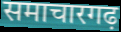
समाचारगढ़